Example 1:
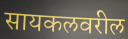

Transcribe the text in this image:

सायकलवरील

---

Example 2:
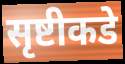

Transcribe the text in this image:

सृष्टीकडे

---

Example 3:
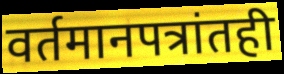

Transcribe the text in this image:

वर्तमानपत्रांतही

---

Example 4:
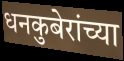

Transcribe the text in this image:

धनकुबेरांच्या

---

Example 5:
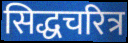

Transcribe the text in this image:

सिद्धचरित्र